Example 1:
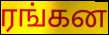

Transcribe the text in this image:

ரங்கன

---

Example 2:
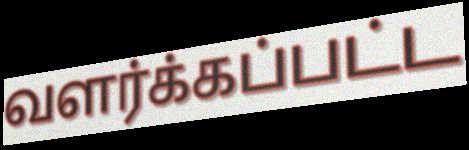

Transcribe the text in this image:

வளர்க்கப்பட்ட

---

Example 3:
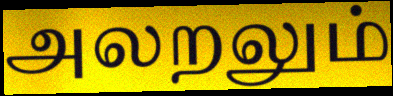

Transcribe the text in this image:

அலறலும்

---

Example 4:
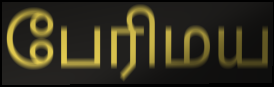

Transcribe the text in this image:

பேரிமய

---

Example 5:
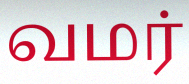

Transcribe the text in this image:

வமர்